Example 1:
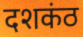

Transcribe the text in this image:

दशकंठ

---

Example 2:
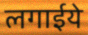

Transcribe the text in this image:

लगाईये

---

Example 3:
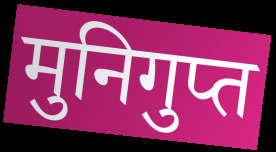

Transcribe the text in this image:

मुनिगुप्त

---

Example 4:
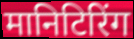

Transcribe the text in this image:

मानिटिरिंग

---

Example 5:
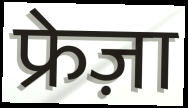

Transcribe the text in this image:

फ्रेज़ा